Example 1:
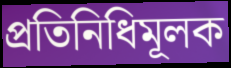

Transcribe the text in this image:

প্ৰতিনিধিমূলক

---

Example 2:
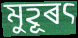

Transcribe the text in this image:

মুহূৰৎ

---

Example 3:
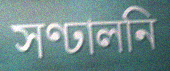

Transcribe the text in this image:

সণ্ঢালনি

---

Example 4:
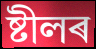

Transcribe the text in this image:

ষ্টীলৰ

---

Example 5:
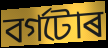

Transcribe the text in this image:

বৰ্গটোৰ